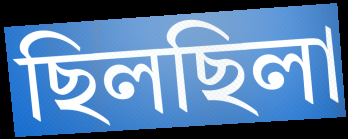
ছিলছিলা